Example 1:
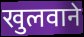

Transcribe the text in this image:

खुलवाने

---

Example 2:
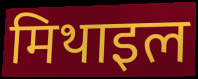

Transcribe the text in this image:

मिथाइल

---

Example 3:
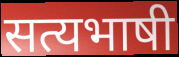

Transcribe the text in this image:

सत्यभाषी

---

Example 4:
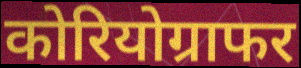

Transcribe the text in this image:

कोरियोग्राफर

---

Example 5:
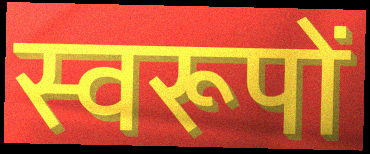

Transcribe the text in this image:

स्वरूपों